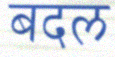
बदल